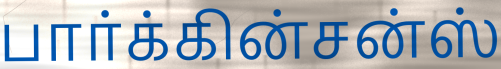
பார்க்கின்சன்ஸ்